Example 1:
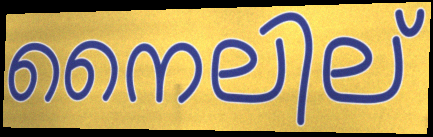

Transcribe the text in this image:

നൈലില്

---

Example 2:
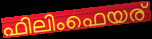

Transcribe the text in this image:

ഫിലിംഫെയര്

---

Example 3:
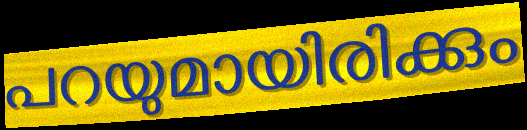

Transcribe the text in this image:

പറയുമായിരിക്കും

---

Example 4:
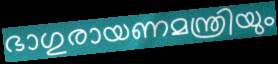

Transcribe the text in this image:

ഭാഗുരായണമന്ത്രിയും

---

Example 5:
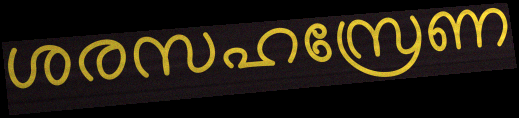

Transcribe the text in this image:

ശരസഹസ്രേണ